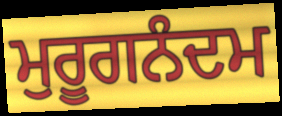
ਮੁਰੂਗਨੰਦਮ